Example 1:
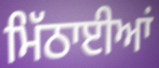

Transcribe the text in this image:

ਮਿੱਠਾਈਆਂ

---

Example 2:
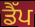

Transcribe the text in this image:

ਡੈੱਪ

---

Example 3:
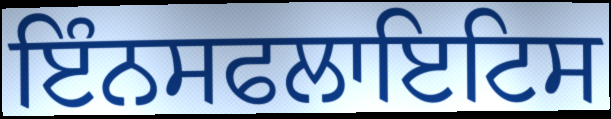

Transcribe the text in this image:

ਇੰਨਸਫਲਾਇਟਿਸ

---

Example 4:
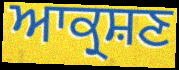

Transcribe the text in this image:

ਆਕ੍ਰਸ਼ਣ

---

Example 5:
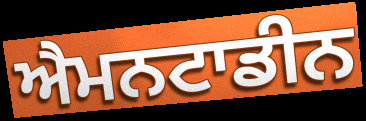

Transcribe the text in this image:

ਐਮਨਟਾਡੀਨ